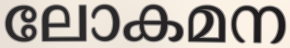
ലോകമന